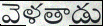
వెళతాడు